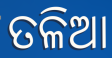
ତଳିଆ